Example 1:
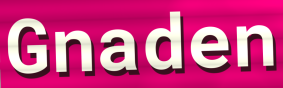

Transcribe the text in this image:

Gnaden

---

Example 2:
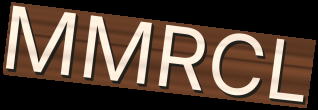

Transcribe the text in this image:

MMRCL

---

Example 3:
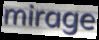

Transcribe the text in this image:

mirage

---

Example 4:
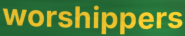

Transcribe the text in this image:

worshippers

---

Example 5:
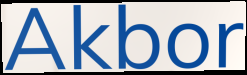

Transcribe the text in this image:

Akbor